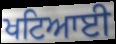
ਖਟਿਆਈ